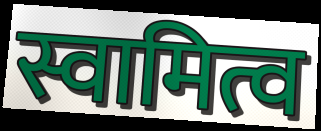
स्वामित्व